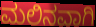
ಮಲಿನವಾಗಿ